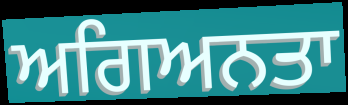
ਅਗਿਅਨਤਾ